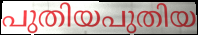
പുതിയപുതിയ